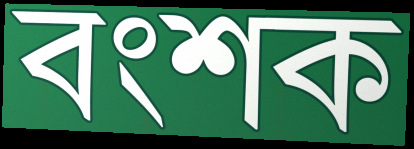
বংশক